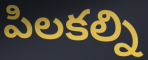
పిలకల్ని